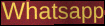
Whatsapp